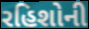
રહિશોની